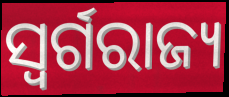
ସ୍ୱର୍ଗରାଜ୍ୟ